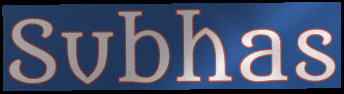
Subhas